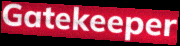
Gatekeeper